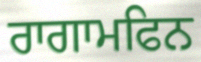
ਰਾਗਾਮਫਿਨ